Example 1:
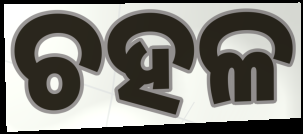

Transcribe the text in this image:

ଚହଳ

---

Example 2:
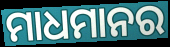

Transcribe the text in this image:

ମାଧମାନର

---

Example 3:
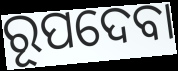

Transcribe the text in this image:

ରୂପଦେବା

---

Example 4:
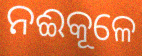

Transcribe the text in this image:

ନଈକୂଳେ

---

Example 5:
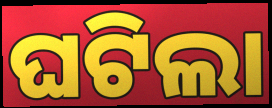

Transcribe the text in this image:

ଘଟିଲା